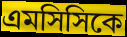
এমসিসিকে